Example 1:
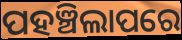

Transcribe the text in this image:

ପହଞ୍ଚିଲାପରେ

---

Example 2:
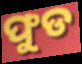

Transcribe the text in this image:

ଫୁଡ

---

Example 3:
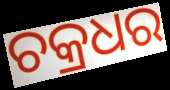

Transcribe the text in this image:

ଚକ୍ରଧର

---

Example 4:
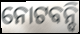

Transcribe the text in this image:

ନୋଟବନ୍ଦି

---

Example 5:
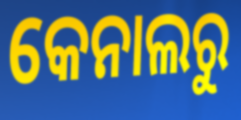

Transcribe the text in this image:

କେନାଲରୁ